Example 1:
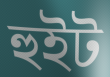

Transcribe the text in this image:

হুইট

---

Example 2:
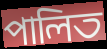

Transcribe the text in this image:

পালিত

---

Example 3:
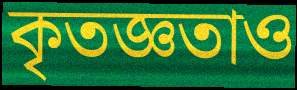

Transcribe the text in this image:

কৃতজ্ঞতাও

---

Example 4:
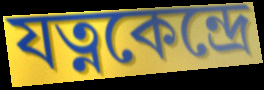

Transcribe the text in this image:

যত্নকেন্দ্রে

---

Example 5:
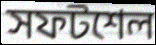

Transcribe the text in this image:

সফটশেল